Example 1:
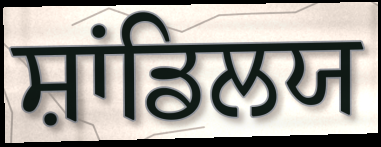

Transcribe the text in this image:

ਸ਼ਾਂਡਿਲਯ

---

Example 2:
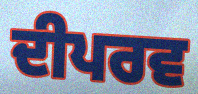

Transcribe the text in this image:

ਦੀਪਰਵ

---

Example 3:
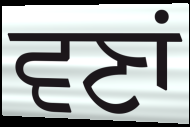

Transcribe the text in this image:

ਵਣਾਂ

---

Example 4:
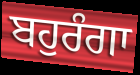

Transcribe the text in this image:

ਬਹੁਰੰਗਾ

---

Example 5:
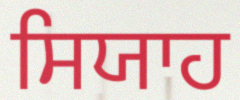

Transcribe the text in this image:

ਸਿਯਾਹ